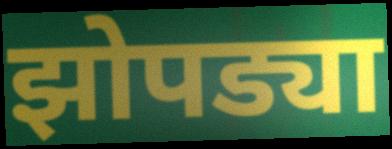
झोपड्या